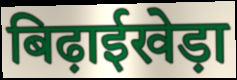
बिढ़ाईखेड़ा